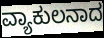
ವ್ಯಾಕುಲನಾದ